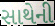
સાથેની